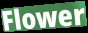
Flower